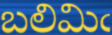
బలిమిఁ